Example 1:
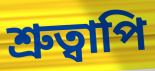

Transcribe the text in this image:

শ্রুত্বাপি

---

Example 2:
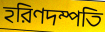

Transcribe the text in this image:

হরিণদম্পতি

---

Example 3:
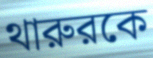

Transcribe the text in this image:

থারুরকে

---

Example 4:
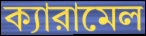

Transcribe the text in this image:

ক্যারামেল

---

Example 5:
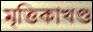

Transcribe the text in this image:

মৃত্তিকাখণ্ড